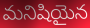
మనిషియైన